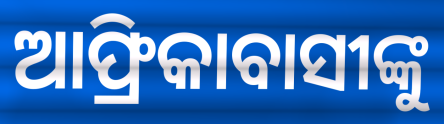
ଆଫ୍ରିକାବାସୀଙ୍କୁ